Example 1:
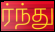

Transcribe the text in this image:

ர்ந்து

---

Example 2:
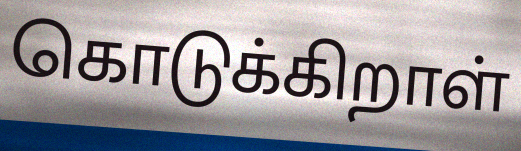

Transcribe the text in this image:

கொடுக்கிறாள்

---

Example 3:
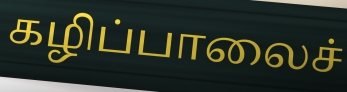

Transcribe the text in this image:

கழிப்பாலைச்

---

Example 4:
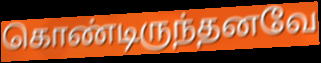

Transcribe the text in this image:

கொண்டிருந்தனவே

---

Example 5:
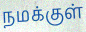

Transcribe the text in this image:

நமக்குள்